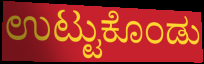
ಉಟ್ಟುಕೊಂಡು